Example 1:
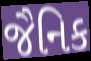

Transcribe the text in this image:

જૈનિક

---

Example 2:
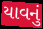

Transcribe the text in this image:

યાવનું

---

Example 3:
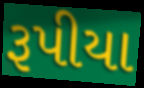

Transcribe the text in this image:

રૂપીયા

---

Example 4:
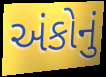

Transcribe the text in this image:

અંકોનું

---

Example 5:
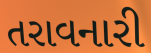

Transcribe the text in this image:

તરાવનારી